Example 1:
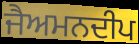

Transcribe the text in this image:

ਜੈਅਮਨਦੀਪ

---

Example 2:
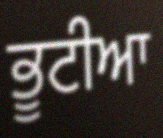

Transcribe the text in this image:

ਭੂਟੀਆ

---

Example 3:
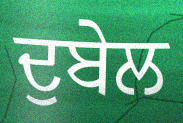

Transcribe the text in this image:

ਦੁਬੇਲ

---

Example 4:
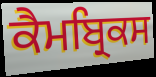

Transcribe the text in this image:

ਕੈਮਬ੍ਰਿਕਸ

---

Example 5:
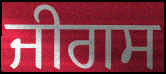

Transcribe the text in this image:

ਜੀਗਸ